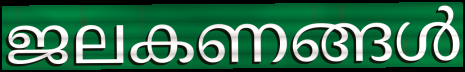
ജലകണങ്ങൾ